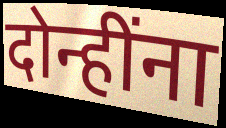
दोन्हींना